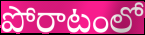
పోరాటంలో